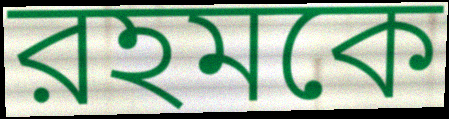
রহমকে